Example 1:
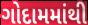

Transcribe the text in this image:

ગોદામમાંથી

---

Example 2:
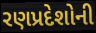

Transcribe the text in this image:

રણપ્રદેશોની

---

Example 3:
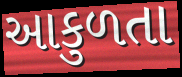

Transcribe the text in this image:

આકુળતા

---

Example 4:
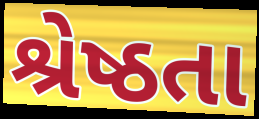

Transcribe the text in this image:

શ્રેષ્ઠતા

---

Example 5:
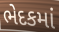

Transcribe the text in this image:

ભેદકમાં